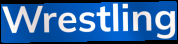
Wrestling